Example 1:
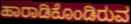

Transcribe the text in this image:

ಹಾರಾಡಿಕೊಂಡಿರುವ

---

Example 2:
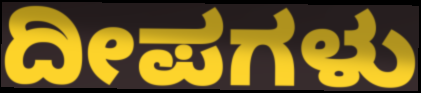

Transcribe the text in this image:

ದೀಪಗಳು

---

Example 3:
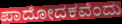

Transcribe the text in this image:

ಪಾದೋದಕವೆಂದು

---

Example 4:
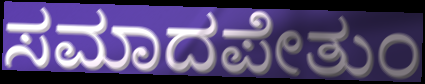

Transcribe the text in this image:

ಸಮಾದಪೇತುಂ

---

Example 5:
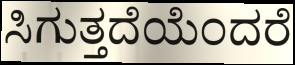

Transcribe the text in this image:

ಸಿಗುತ್ತದೆಯೆಂದರೆ